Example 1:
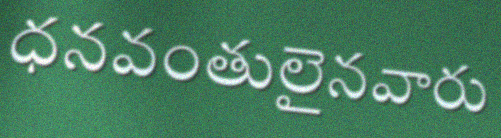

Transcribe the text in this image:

ధనవంతులైనవారు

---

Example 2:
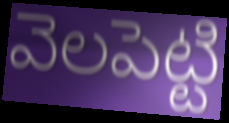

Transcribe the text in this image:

వెలపెట్టి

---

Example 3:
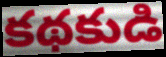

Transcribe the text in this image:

కథకుడి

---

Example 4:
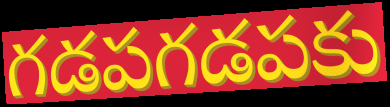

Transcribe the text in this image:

గడపగడపకు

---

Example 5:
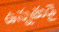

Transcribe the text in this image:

ఉన్నతుడై